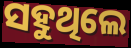
ସହୁଥିଲେ